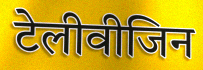
टेलीवीजिन